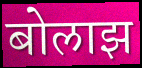
बोलाझ